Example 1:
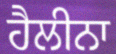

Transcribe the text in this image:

ਹੈਲੀਨਾ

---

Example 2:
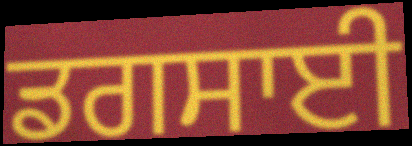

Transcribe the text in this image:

ਡਗਸਾਈ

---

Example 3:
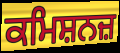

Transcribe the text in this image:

ਕਮਿਸ਼ਨਜ਼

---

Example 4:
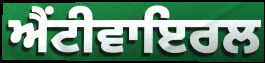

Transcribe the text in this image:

ਐਂਟੀਵਾਇਰਲ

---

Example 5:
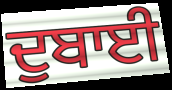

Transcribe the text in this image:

ਦੁਬਾਈ